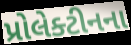
પ્રોલેક્ટીનના